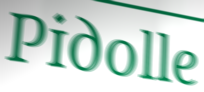
Pidolle